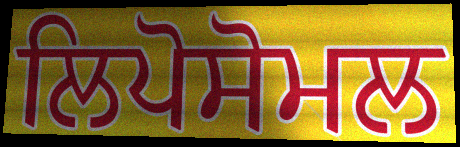
ਲਿਪੋਸੋਮਲ